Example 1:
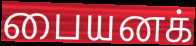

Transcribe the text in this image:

பையனக்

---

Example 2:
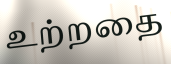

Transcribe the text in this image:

உற்றதை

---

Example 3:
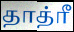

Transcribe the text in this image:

தாத்ரீ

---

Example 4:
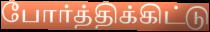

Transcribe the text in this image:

போர்த்திக்கிட்டு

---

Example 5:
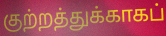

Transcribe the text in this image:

குற்றத்துக்காகப்